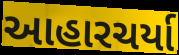
આહારચર્યા